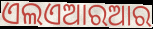
ଏଲଏଆରଆର